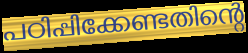
പഠിപ്പിക്കേണ്ടതിന്റെ